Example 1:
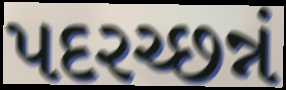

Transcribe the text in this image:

પદરચ્છન્નં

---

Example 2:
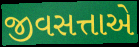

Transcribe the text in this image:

જીવસત્તાએ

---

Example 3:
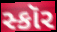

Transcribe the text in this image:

સ્કૉર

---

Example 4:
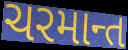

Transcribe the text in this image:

ચરમાન્ત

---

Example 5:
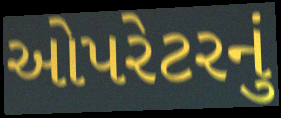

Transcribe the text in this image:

ઓપરેટરનું